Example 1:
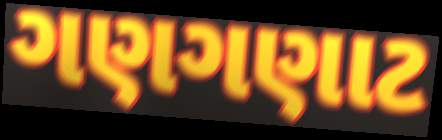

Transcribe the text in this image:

ગણગણાટ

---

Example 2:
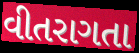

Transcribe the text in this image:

વીતરાગતા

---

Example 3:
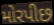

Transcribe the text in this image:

મોરપીછ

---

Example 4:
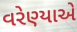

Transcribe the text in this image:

વરેણ્યાએ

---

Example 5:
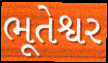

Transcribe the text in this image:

ભૂતેશ્વર